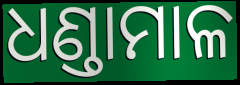
ଧଣ୍ଡାମାଳ